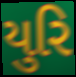
યુરિ